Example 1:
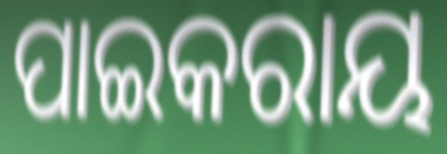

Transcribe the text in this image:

ପାଇକରାୟ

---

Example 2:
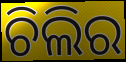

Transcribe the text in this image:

ଚିଲିର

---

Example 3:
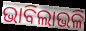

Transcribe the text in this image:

ଭାବିଲାଭଳି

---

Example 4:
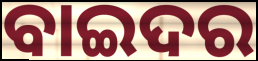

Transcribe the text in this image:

ବାଇଦର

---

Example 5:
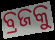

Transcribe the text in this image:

ବ୍ରଜକୁ